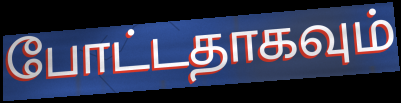
போட்டதாகவும்